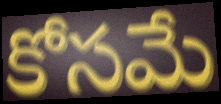
కోసమే